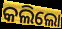
କଲିଲୋ